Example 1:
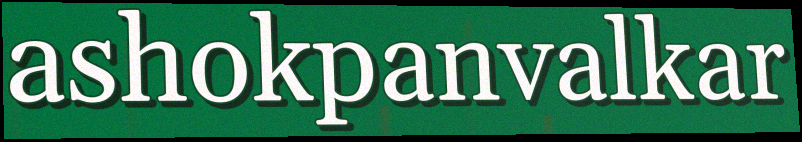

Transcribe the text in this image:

ashokpanvalkar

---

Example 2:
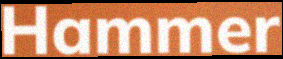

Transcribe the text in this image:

Hammer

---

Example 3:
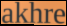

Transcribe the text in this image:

akhre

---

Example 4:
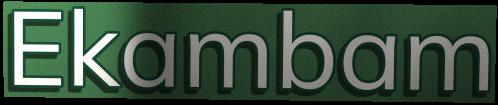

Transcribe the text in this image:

Ekambam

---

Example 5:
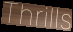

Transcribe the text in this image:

Thrills